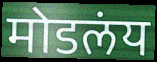
मोडलंय